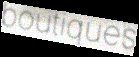
boutiques